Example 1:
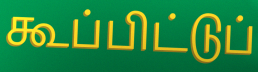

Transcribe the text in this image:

கூப்பிட்டுப்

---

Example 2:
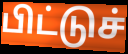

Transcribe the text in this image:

பிட்டுச்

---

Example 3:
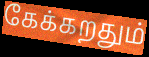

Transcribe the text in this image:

கேக்கறதும்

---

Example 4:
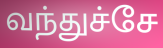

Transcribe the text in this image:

வந்துச்சே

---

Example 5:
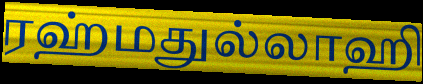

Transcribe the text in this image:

ரஹ்மதுல்லாஹி